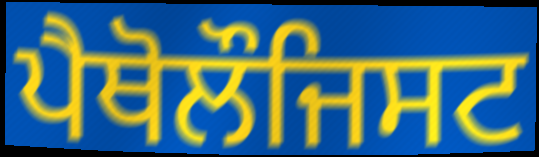
ਪੈਥੋਲੌਜਿਸਟ